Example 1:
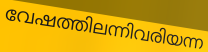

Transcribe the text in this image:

വേഷത്തിലന്നിവരിയന്ന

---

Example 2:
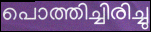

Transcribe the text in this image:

പൊത്തിച്ചിരിച്ചു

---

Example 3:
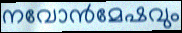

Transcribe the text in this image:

നവോൻമേഷവും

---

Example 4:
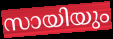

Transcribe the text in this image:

സായിയും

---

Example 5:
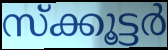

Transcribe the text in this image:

സ്ക്കൂട്ടർ